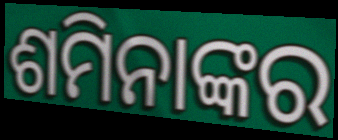
ଶମିନାଙ୍କର